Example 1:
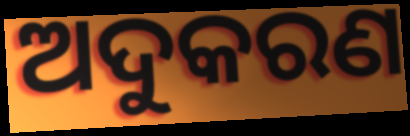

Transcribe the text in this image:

ଅଦୁକରଣ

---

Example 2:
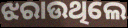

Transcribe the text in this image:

ଝରାଉଥିଲେ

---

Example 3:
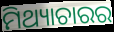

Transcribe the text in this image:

ମିଥ୍ୟାଚାରର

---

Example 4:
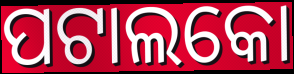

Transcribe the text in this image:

ପଟାଲକୋ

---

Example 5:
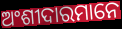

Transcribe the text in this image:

ଅଂଶୀଦାରମାନେ